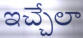
ఇచ్చేలా